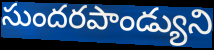
సుందరపాండ్యుని